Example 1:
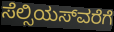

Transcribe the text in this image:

ಸೆಲ್ಸಿಯಸ್‍ವರೆಗೆ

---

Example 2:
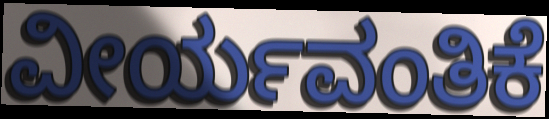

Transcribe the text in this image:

ವೀರ್ಯವಂತಿಕೆ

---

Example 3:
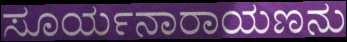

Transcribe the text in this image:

ಸೂರ್ಯನಾರಾಯಣನು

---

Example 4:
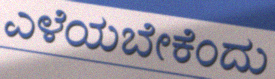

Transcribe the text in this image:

ಎಳೆಯಬೇಕೆಂದು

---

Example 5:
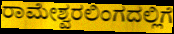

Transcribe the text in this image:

ರಾಮೇಶ್ವರಲಿಂಗದಲ್ಲಿಗೆ